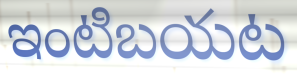
ఇంటిబయట